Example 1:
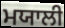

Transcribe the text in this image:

ਮਯਾਲੀ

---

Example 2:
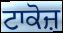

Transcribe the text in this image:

ਟਾਕੋਜ਼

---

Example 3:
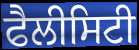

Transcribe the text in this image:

ਫੈਲੀਸਿਟੀ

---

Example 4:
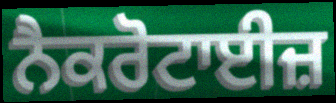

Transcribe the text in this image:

ਨੈਕਰੋਟਾਈਜ਼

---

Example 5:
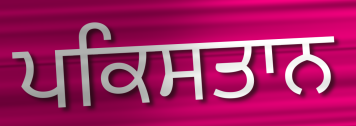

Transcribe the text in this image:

ਪਕਿਸਤਾਨ